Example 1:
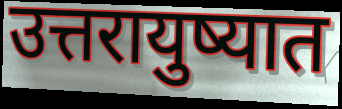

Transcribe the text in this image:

उत्तरायुष्यात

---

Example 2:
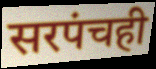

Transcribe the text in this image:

सरपंचही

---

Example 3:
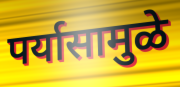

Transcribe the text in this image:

पर्यासामुळे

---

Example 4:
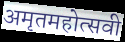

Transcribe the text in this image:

अमृतमहोत्सवी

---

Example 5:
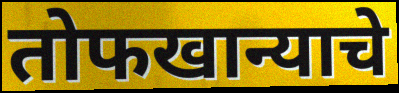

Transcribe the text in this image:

तोफखान्याचे